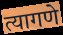
त्यागणे